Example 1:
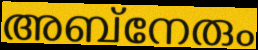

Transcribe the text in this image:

അബ്നേരും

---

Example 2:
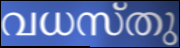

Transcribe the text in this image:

വധസ്തു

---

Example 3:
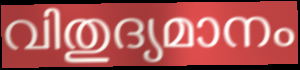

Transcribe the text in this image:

വിതുദ്യമാനം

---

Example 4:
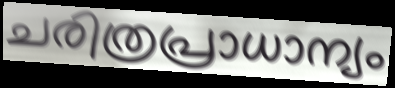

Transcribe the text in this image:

ചരിത്രപ്രാധാന്യം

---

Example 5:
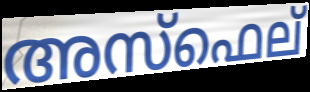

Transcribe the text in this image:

അസ്ഫെല്